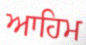
ਆਹਿਮ